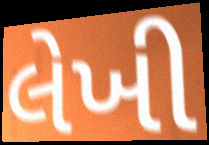
લેખી